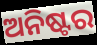
ଅନିଷ୍ଟର